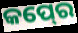
କପ୍‍ରେ